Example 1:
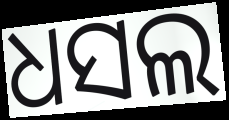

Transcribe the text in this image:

ଧସଲ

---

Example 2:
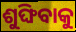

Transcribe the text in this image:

ଶୁଙ୍ଘିବାକୁ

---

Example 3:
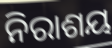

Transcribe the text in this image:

ନିରାଶୟ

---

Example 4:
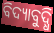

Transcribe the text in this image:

ବିଦ୍ୟାବୁଦ୍ଧି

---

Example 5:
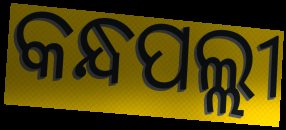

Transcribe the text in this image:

କନ୍ଧପଲ୍ଲୀ